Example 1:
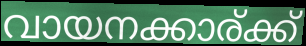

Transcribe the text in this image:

വായനക്കാര്ക്ക്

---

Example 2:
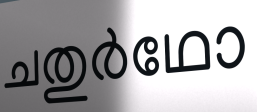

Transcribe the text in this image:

ചതുർഥോ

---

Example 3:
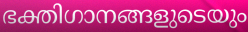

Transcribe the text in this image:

ഭക്തിഗാനങ്ങളുടെയും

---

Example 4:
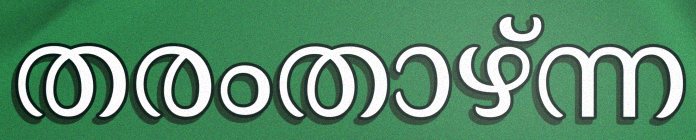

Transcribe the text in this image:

തരംതാഴ്ന്ന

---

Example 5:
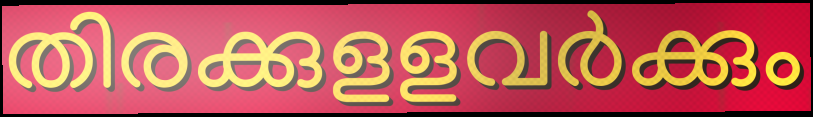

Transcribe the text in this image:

തിരക്കുളളവർക്കും